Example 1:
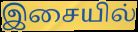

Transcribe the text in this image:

இசையில்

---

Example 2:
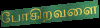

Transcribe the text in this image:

போகிறவளை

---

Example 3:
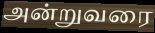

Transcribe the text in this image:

அன்றுவரை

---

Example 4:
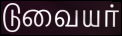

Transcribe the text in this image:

டுவையர்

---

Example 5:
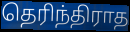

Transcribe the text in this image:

தெரிந்திராத